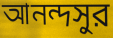
আনন্দসুর